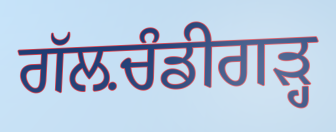
ਗੱਲ਼ਚੰਡੀਗੜ੍ਹ